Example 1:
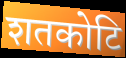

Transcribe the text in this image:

शतकोटि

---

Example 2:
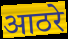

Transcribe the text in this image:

आठरे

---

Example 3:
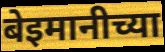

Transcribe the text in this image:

बेइमानीच्या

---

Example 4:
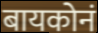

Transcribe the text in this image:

बायकोनं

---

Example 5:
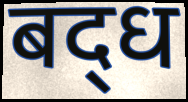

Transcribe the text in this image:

बद्ध